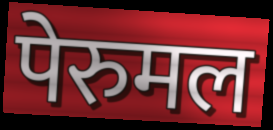
पेरुमल